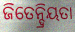
ଜିତେନ୍ଦ୍ରିୟତା